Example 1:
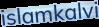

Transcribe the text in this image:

islamkalvi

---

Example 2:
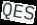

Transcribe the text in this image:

QES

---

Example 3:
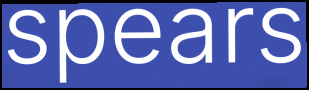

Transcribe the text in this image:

spears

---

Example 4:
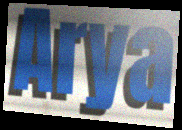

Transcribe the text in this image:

Arya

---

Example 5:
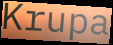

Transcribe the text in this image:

Krupa